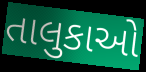
તાલુકાઓ